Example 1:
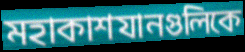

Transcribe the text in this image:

মহাকাশযানগুলিকে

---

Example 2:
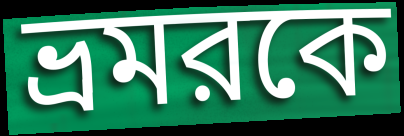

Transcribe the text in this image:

ভ্রমরকে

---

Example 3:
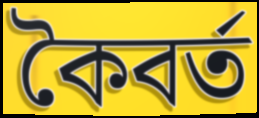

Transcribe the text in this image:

কৈবর্ত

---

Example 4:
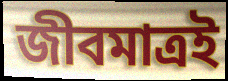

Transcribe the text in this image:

জীবমাত্রই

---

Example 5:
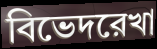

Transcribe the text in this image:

বিভেদরেখা